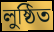
লুষ্ঠিত